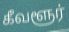
கீவளூர்